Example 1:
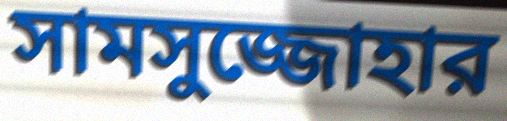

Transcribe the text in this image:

সামসুজ্জোহার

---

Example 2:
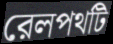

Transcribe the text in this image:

রেলপথটি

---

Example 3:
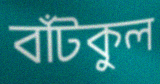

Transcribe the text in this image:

বাঁটকুল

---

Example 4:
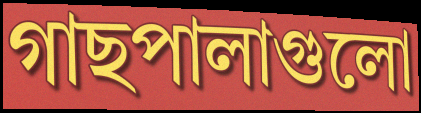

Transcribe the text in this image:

গাছপালাগুলো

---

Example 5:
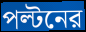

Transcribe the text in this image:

পল্টনের